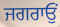
ਜਗਰਾਓੁਂ